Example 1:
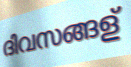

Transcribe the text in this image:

ദിവസങ്ങള്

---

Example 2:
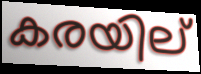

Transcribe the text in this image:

കരയില്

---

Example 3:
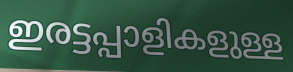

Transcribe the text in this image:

ഇരട്ടപ്പാളികളുള്ള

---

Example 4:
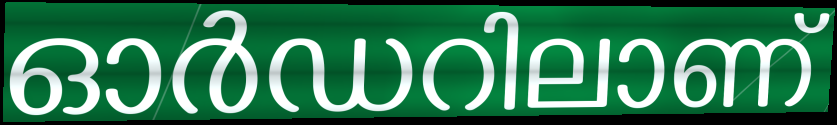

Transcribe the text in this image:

ഓർഡറിലാണ്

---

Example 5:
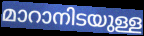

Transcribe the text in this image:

മാറാനിടയുള്ള